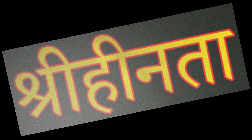
श्रीहीनता